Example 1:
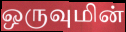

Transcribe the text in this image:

ஒருவுமின்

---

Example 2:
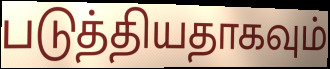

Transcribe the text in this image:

படுத்தியதாகவும்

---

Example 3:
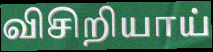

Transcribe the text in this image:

விசிறியாய்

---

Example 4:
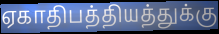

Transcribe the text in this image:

ஏகாதிபத்தியத்துக்கு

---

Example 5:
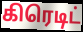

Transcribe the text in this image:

கிரெடிட்